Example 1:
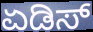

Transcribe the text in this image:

ಏಡಿಸ್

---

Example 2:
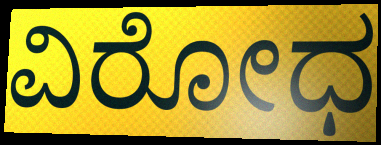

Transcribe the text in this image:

ವಿರೋಧ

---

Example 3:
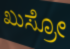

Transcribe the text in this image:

ಖುಸ್ರೋ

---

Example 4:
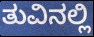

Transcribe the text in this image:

ತುವಿನಲ್ಲಿ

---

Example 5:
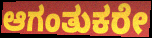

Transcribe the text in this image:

ಆಗಂತುಕರೇ